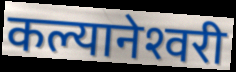
कल्यानेश्वरी